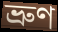
ভ্ৰুণ